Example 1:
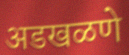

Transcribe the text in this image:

अडखळणे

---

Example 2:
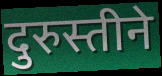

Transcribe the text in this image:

दुरुस्तीने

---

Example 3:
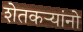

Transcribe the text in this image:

शेतकऱ्यांनो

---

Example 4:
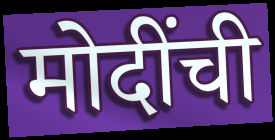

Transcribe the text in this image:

मोदींची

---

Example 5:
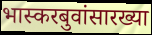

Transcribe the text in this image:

भास्करबुवांसारख्या